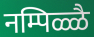
नम्पिळ्ळै